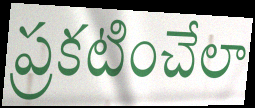
ప్రకటించేలా